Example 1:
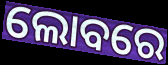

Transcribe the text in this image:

ଲୋବରେ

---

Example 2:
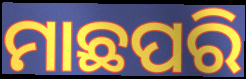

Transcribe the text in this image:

ମାଛପରି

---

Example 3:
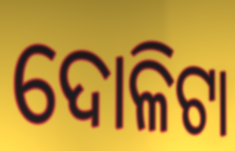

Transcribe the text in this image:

ଦୋଳିଟା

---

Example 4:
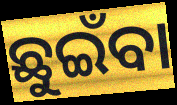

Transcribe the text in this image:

ଛୁଇଁବା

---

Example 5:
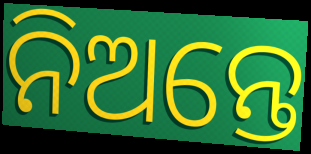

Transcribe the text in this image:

ନିଅନ୍ତେ